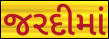
જરદીમાં